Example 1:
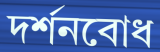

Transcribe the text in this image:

দর্শনবোধ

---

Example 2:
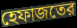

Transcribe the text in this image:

হেফাজতের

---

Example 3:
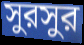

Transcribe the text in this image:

সুরসুর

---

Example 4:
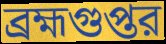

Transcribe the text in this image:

ব্রহ্মগুপ্তর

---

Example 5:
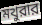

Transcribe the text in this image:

মথুরার